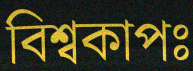
বিশ্বকাপঃ